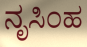
ನೃಸಿಂಹ